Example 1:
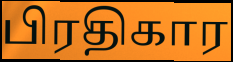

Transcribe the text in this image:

பிரதிகார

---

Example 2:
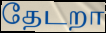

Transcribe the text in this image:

தேடறா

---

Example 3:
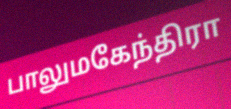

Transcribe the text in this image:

பாலுமகேந்திரா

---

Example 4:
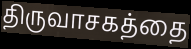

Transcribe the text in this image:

திருவாசகத்தை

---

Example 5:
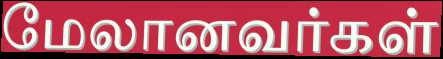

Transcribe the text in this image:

மேலானவர்கள்